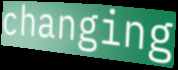
changing